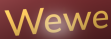
Wewe